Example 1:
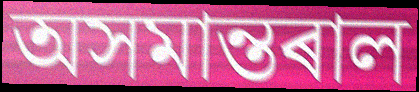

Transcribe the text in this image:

অসমান্তৰাল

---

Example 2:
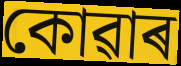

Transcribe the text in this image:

কোৱাৰ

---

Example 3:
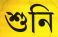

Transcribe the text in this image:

শুনি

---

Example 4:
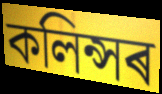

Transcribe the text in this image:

কলিন্সৰ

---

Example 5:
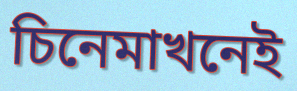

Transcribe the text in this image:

চিনেমাখনেই